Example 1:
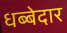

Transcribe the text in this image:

धब्बेदार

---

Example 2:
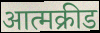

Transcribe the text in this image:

आत्मक्रीड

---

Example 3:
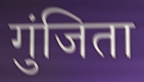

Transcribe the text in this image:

गुंजिता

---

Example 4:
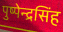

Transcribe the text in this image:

पुष्पेन्द्रसिंह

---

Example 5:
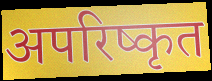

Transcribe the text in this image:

अपरिष्कृत